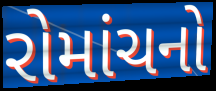
રોમાંચનો